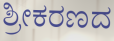
ಶ್ರೀಕರಣದ